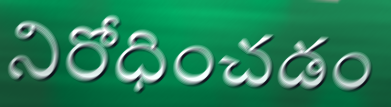
నిరోధించడం